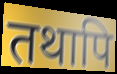
तथापि